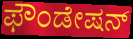
ಫೌಂಡೇಷನ್